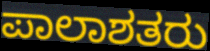
ಪಾಲಾಶತರು